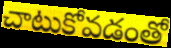
చాటుకోవడంతో